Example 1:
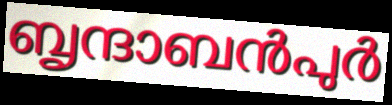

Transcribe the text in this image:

ബൃന്ദാബൻപുർ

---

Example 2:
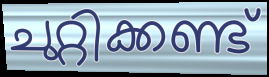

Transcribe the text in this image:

ചുറ്റിക്കണ്ട്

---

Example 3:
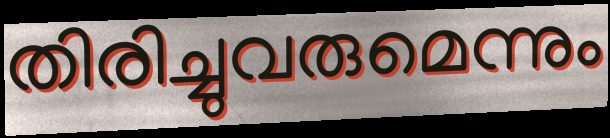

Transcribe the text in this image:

തിരിച്ചുവരുമെന്നും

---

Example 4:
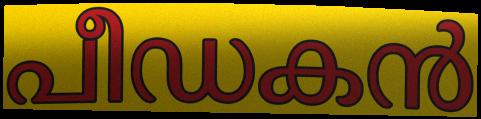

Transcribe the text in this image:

പീഡകൻ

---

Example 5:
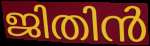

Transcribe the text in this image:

ജിതിൻ